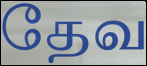
தேவ